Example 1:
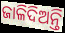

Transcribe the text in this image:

ଜାଳିଦିଅନ୍ତି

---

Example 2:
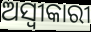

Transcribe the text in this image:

ଅସ୍ୱୀକାରୀ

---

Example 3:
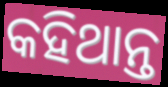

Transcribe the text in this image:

କହିଥାନ୍ତ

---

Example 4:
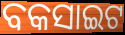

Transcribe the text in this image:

ବକସାଇଟ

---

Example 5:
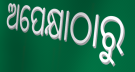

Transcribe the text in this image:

ଅପେକ୍ଷାଠାରୁ